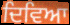
ਦਿਵਿਆ